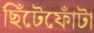
ছিঁটেফোঁটা